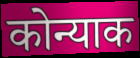
कोन्याक